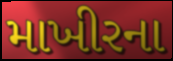
માખીરના